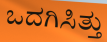
ಒದಗಿಸಿತ್ತು